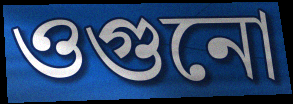
ওগুনো